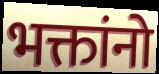
भक्तांनो